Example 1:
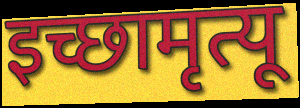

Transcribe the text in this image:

इच्छामृत्यू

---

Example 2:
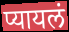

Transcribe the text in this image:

प्यायलं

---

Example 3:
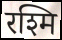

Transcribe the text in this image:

रश्मि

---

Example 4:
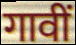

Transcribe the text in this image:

गावीं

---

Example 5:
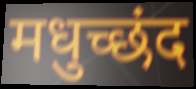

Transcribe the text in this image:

मधुच्छंद